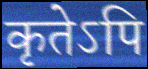
कृतेऽपि